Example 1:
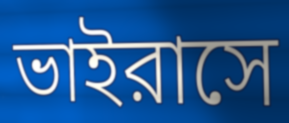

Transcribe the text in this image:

ভাইরাসে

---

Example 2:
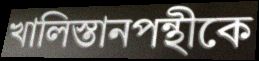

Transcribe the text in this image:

খালিস্তানপন্থীকে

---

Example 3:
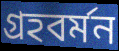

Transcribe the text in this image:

গ্রহবর্মন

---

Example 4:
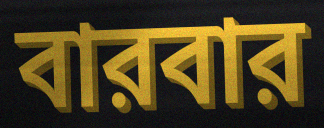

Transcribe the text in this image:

বারবার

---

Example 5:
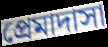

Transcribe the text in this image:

প্রেমাদাসা